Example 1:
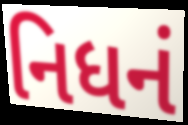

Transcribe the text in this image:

નિધનં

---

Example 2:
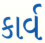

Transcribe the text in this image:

કાર્વ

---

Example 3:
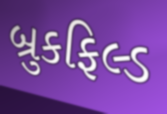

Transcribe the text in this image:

બ્રુકફિલ્ડ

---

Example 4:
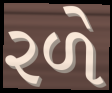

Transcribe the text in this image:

રળે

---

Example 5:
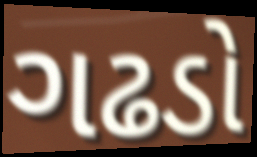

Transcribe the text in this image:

ગઢડો